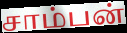
சாம்பன்